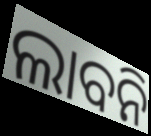
ଲାବନି